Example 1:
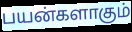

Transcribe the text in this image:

பயன்களாகும்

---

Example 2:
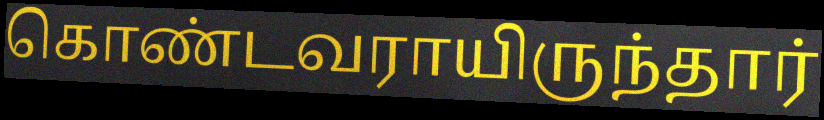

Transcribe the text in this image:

கொண்டவராயிருந்தார்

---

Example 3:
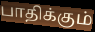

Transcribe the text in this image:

பாதிக்கும்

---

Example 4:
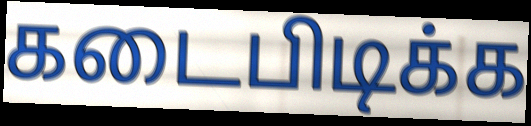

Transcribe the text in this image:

கடைபிடிக்க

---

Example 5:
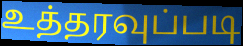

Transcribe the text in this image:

உத்தரவுப்படி